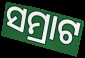
ସମ୍ରାଟ